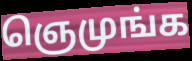
ஞெமுங்க